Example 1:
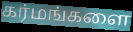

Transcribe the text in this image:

கர்மங்களை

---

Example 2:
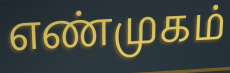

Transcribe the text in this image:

எண்முகம்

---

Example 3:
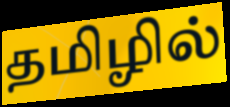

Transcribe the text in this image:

தமிழில்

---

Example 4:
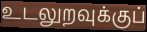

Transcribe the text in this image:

உடலுறவுக்குப்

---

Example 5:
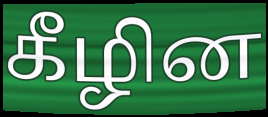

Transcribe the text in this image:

கீழின